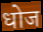
धोज